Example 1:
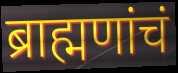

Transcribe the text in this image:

ब्राह्मणांचं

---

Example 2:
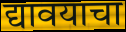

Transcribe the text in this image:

द्यावयाचा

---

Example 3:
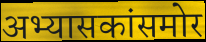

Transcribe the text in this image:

अभ्यासकांसमोर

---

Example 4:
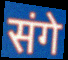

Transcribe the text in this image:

संगे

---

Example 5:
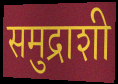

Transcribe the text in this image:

समुद्राशी